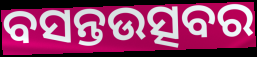
ବସନ୍ତଉତ୍ସବର